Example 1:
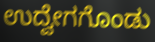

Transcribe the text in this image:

ಉದ್ವೇಗಗೊಂಡು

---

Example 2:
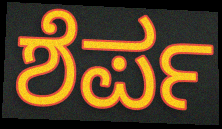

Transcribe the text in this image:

ಶೆರ್ಪ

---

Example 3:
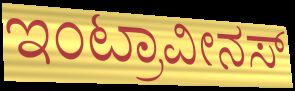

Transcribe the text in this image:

ಇಂಟ್ರಾವೀನಸ್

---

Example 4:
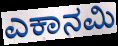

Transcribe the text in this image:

ಎಕಾನಮಿ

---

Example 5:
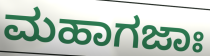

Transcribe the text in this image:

ಮಹಾಗಜಾಃ